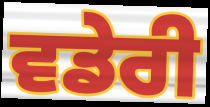
ਵਡੇਰੀ